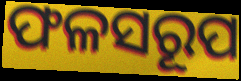
ଫଳସରୂପ